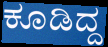
ಕೂಡಿದ್ದ